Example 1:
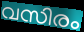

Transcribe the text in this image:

വസിരം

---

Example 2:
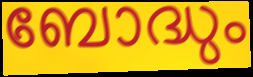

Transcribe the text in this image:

ബോദ്ധും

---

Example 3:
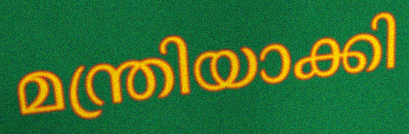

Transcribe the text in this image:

മന്ത്രിയാക്കി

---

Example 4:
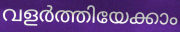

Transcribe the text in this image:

വളർത്തിയേക്കാം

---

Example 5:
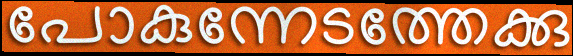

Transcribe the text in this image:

പോകുന്നേടത്തേക്കു